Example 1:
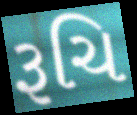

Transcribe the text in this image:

રૂચિ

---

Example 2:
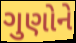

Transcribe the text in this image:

ગુણોને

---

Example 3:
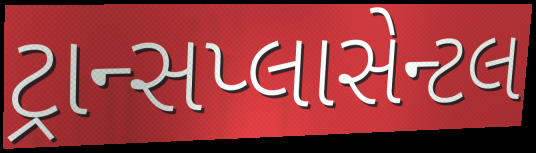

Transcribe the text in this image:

ટ્રાન્સપ્લાસેન્ટલ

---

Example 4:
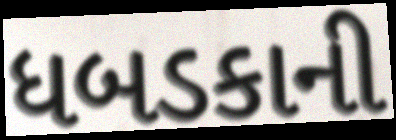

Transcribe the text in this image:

ધબડકાની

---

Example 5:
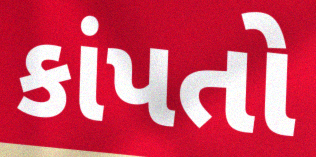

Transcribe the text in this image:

કાંપતો